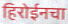
हिरोईनचा